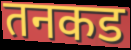
तनकड